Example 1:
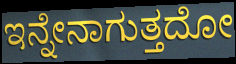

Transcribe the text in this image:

ಇನ್ನೇನಾಗುತ್ತದೋ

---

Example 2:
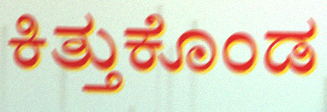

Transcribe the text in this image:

ಕಿತ್ತುಕೊಂಡ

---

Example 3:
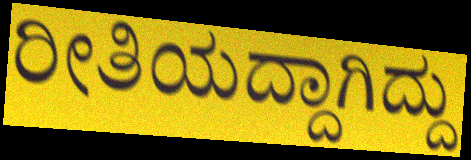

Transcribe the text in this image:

ರೀತಿಯದ್ದಾಗಿದ್ದು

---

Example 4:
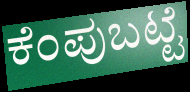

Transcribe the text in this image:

ಕೆಂಪುಬಟ್ಟೆ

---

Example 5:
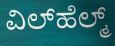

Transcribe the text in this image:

ವಿಲ್‌ಹೆಲ್ಮ್